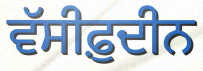
ਵੱਸੀਫ਼ੁਦੀਨ